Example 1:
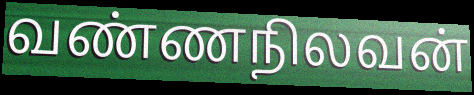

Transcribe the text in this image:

வண்ணநிலவன்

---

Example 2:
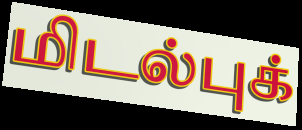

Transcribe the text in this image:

மிடல்புக்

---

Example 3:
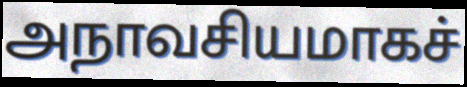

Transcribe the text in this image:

அநாவசியமாகச்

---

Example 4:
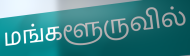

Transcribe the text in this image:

மங்களூருவில்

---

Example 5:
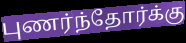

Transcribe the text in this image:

புணர்ந்தோர்க்கு